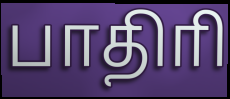
பாதிரி